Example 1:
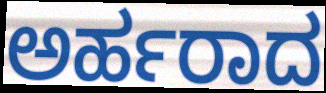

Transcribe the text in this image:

ಅರ್ಹರಾದ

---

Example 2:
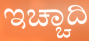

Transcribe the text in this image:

ಇಚ್ಚಾದಿ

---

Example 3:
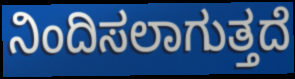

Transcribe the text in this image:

ನಿಂದಿಸಲಾಗುತ್ತದೆ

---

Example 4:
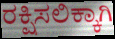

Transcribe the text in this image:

ರಕ್ಷಿಸಲಿಕ್ಕಾಗಿ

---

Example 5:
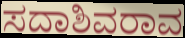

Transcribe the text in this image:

ಸದಾಶಿವರಾವ